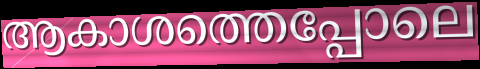
ആകാശത്തെപ്പോലെ